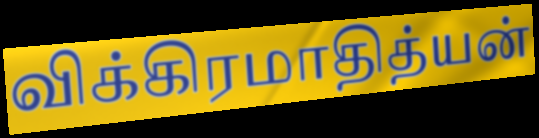
விக்கிரமாதித்யன்